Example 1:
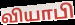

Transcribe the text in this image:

வியாபி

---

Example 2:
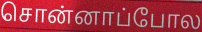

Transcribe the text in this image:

சொன்னாப்போல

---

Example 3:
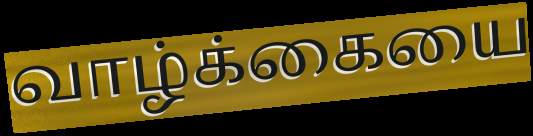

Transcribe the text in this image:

வாழ்க்கையை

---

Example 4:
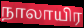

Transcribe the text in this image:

நாலாயிர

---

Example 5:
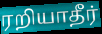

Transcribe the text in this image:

ரறியாதீர்